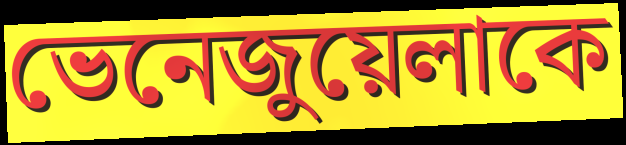
ভেনেজুয়েলাকে